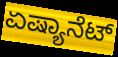
ಏಷ್ಯಾನೆಟ್